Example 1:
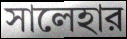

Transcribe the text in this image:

সালেহার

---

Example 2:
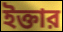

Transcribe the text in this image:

ইক্তার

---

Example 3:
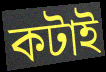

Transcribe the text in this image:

কটাই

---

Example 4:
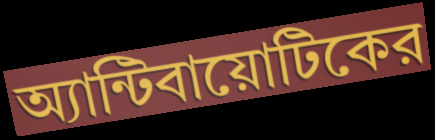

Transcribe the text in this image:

অ্যান্টিবায়োটিকের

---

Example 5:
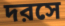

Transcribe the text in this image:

দরসে